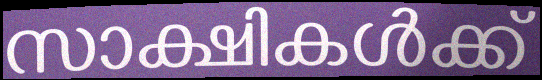
സാക്ഷികൾക്ക്